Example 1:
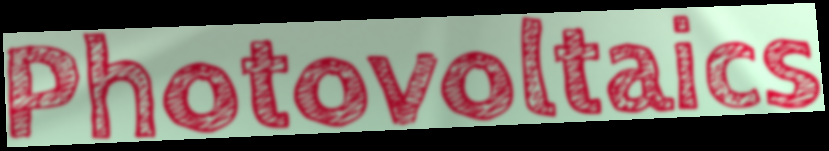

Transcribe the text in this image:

Photovoltaics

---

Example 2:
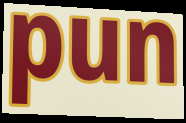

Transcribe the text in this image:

pun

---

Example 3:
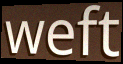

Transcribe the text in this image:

weft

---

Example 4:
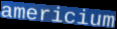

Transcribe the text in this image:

americium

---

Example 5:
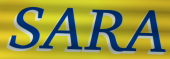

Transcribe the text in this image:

SARA